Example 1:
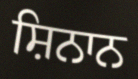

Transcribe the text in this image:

ਸ਼ਿਨਾਨ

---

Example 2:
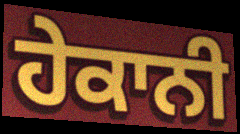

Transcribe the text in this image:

ਹੇਕਾਨੀ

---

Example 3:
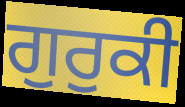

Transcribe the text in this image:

ਗੁਰੁਕੀ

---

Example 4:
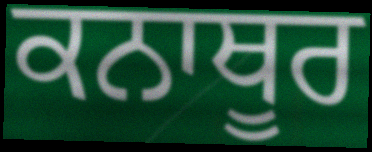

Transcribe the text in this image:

ਕਨਾਥੂਰ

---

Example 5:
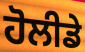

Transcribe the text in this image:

ਹੋਲੀਡੇ